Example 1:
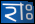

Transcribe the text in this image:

হাঃ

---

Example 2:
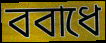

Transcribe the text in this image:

ববাধে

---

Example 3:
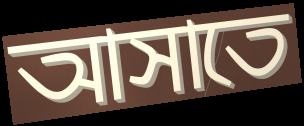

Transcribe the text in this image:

আসাতে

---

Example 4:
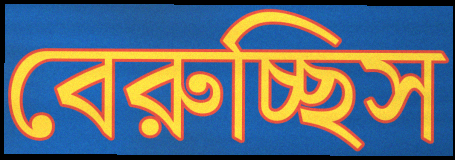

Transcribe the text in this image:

বেরুচ্ছিস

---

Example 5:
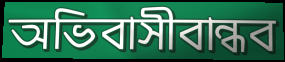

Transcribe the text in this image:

অভিবাসীবান্ধব